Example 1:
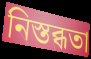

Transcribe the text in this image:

নিস্তব্ধতা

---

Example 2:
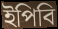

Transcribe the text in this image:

ইপিবি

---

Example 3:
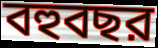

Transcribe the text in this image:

বহুবছর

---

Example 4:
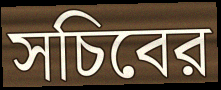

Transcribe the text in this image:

সচিবের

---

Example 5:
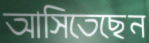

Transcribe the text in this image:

আসিতেছেন